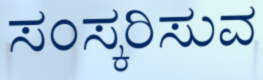
ಸಂಸ್ಕರಿಸುವ